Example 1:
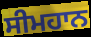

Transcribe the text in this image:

ਸੀਮਹਾਨ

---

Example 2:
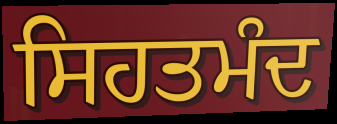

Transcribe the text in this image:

ਸਿਹਤਮੰਦ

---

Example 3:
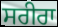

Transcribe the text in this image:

ਸਰੀਰਾ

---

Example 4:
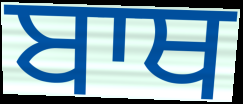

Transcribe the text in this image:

ਬਾਥ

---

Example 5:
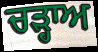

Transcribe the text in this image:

ਚੜ੍ਹਾਅ